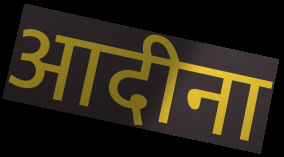
आदीना